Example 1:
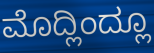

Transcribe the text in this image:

ಮೊದ್ಲಿಂದ್ಲೂ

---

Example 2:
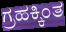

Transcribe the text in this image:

ಗ್ರಹಕ್ಕಿಂತ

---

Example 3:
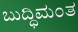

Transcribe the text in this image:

ಬುದ್ಧಿಮಂತ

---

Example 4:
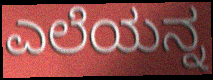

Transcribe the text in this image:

ಎಲೆಯನ್ನ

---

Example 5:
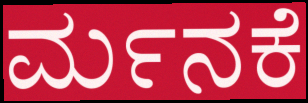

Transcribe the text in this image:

ರ್ಮನಕೆ